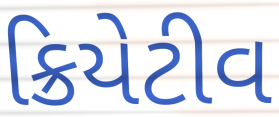
ક્રિયેટીવ